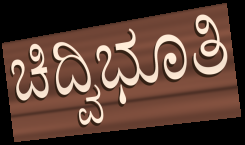
ಚಿದ್ವಿಭೂತಿ